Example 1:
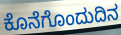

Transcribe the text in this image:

ಕೊನೆಗೊಂದುದಿನ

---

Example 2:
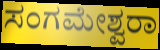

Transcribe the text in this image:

ಸಂಗಮೇಶ್ವರಾ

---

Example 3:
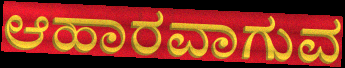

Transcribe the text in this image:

ಆಹಾರವಾಗುವ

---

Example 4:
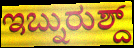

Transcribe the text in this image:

ಇಬ್ನುರುಶ್ದ್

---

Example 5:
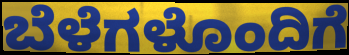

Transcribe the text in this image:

ಬೆಳೆಗಳೊಂದಿಗೆ